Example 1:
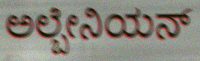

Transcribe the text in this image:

ಅಲ್ಬೇನಿಯನ್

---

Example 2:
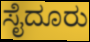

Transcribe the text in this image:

ಸೈದೂರು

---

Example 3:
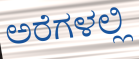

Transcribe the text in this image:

ಅರೆಗಳಲ್ಲಿ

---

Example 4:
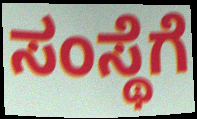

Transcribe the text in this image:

ಸಂಸ್ಥೆಗೆ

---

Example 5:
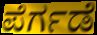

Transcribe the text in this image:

ಪೆರ್ಗಡೆ